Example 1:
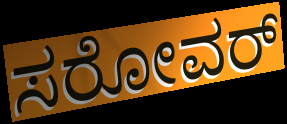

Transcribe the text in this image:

ಸರೋವರ್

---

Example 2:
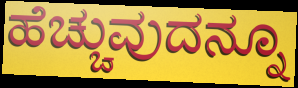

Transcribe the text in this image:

ಹೆಚ್ಚುವುದನ್ನೂ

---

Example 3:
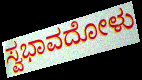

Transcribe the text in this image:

ಸ್ವಭಾವದೋಳು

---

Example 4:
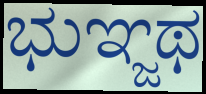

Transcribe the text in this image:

ಭುಞ್ಜಥ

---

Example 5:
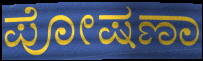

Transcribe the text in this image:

ಪೋಷಣಾ